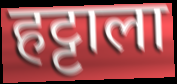
हट्टाला